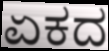
ಏಕದ